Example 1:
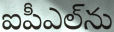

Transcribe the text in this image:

ఐపీఎల్‌ను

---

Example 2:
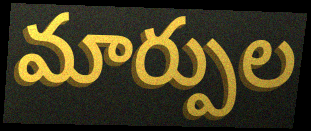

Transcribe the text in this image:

మార్పుల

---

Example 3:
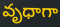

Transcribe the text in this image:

వృధాగా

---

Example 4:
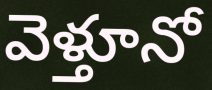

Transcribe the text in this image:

వెళ్తూనో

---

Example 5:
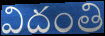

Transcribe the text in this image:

విదంతి